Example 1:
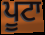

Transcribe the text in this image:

ਪੂਟਾ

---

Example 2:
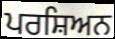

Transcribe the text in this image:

ਪਰਸ਼ਿਅਨ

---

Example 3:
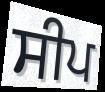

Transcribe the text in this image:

ਸੀਪ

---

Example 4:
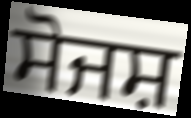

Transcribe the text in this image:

ਸੋਜਸ਼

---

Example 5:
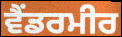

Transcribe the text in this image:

ਵੈਂਡਰਮੀਰ